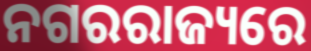
ନଗରରାଜ୍ୟରେ